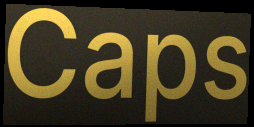
Caps